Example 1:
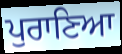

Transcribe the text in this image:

ਪੁਰਾਣਿਆ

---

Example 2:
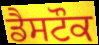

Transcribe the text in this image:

ਡੈਸਟੌਕ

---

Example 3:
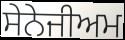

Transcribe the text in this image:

ਸੇਨੇਜੀਅਮ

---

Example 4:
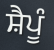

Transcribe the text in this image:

ਸ਼ੈਪੂੰ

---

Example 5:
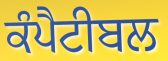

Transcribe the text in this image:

ਕੰਪੈਟੀਬਲ